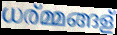
ധര്മ്മങ്ങള്